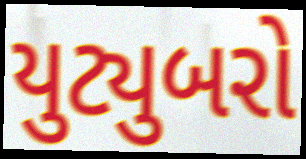
યુટ્યુબરો